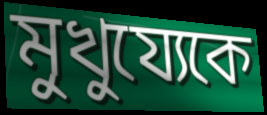
মুখুয্যেকে